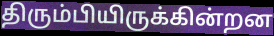
திரும்பியிருக்கின்றன